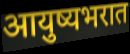
आयुष्यभरात